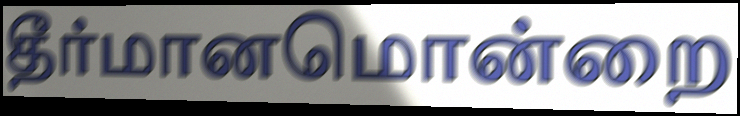
தீர்மானமொன்றை